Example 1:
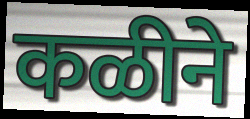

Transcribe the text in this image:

कळीने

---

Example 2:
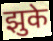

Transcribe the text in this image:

झुके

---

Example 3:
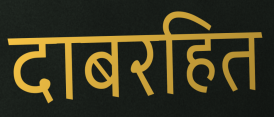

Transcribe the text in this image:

दाबरहित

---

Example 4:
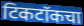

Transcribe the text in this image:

टिकटॉकचा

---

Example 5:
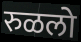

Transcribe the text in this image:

रुळलो